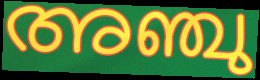
അഞ്ചു